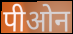
पीओन